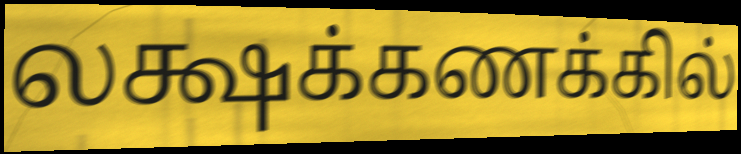
லக்ஷக்கணக்கில்